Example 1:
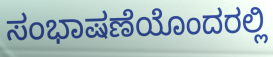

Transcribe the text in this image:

ಸಂಭಾಷಣೆಯೊಂದರಲ್ಲಿ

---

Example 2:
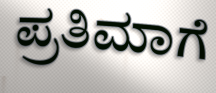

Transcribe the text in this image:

ಪ್ರತಿಮಾಗೆ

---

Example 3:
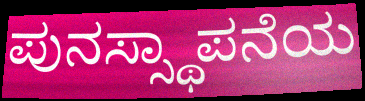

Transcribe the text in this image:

ಪುನಸ್ಸ್ಥಾಪನೆಯ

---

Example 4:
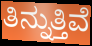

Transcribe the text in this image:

ತಿನ್ನುತ್ತಿವೆ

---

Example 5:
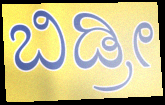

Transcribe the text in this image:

ಬಿಡ್ರೀ